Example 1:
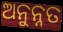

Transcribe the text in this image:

ଅନୁନ୍ନତ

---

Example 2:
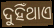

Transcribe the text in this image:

ଦୁହିଁଥାଏ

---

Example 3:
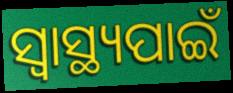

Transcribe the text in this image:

ସ୍ବାସ୍ଥ୍ୟପାଇଁ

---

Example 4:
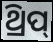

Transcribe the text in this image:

ଥ୍ରିପ୍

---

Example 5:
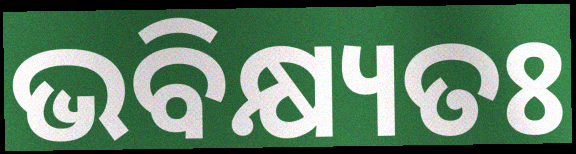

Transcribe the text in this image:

ଭବିକ୍ଷ୍ୟତଃ